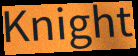
Knight